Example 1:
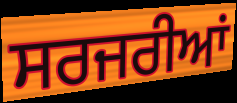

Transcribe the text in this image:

ਸਰਜਰੀਆਂ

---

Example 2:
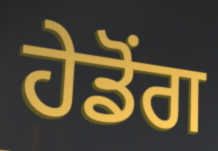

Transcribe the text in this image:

ਹੇਡੋਂਗ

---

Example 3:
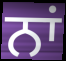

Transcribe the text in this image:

ਨਾਂ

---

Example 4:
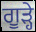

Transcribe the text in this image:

ਗੂੜ੍ਹੇ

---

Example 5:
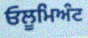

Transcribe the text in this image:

ਓਲੂਮਿਅੰਟ